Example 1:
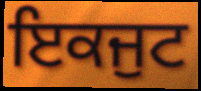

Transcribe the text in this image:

ਇਕਜੁਟ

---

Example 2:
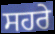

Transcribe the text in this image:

ਸਹਰੇ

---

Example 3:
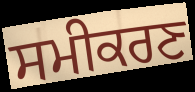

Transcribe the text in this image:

ਸਮੀਕਰਣ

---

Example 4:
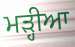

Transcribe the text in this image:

ਮੜ੍ਹੀਆ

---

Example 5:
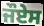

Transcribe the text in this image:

ਜੌਏਸ